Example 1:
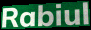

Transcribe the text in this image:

Rabiul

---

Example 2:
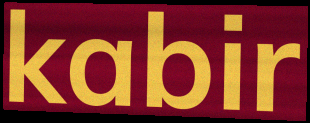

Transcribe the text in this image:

kabir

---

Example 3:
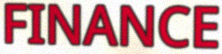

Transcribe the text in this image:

FINANCE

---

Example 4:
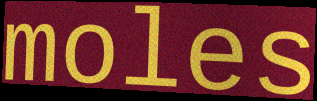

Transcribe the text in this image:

moles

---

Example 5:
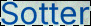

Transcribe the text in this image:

Sotter